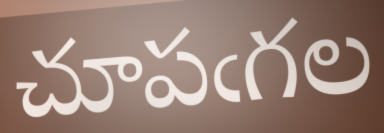
చూపఁగల